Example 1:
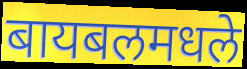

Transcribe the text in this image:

बायबलमधले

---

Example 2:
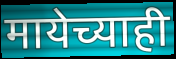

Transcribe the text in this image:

मायेच्याही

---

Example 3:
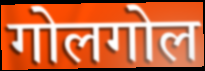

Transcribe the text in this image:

गोलगोल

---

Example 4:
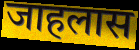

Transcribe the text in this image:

जाहलास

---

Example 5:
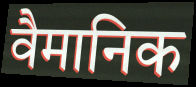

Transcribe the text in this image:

वैमानिक